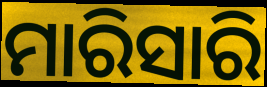
ମାରିସାରି